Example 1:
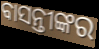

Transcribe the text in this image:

ବାସନ୍ତୀଙ୍କର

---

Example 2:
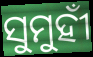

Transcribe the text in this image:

ସୁମୁହୀଁ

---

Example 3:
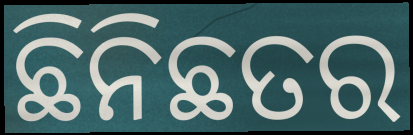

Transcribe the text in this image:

ଛିନିଛତର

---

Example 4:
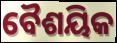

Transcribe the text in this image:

ବୈଶୟିକ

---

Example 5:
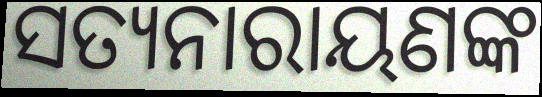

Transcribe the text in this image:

ସତ୍ୟନାରାୟଣଙ୍କ